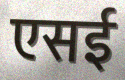
एसई